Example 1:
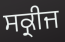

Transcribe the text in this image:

ਸਕ੍ਰੀਜ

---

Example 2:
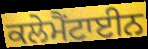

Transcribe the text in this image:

ਕਲੇਮੈਂਟਾਈਨ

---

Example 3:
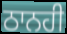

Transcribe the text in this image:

ਠਾਨਹੀ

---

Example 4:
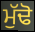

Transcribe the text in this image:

ਮੁੱਢੋ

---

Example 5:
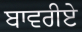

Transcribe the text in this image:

ਬਾਵਰੀਏ